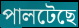
পালটেছে